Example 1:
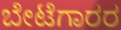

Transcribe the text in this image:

ಬೇಟೆಗಾರರ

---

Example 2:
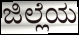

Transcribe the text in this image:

ಜಿಲ್ಲೆಯ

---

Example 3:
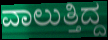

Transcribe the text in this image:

ವಾಲುತ್ತಿದ್ದ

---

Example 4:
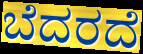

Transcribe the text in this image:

ಬೆದರದೆ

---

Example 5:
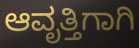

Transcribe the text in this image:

ಆವೃತ್ತಿಗಾಗಿ